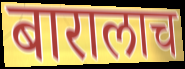
बारालाच